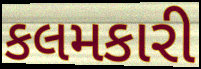
કલમકારી